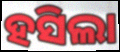
ହସିଲା